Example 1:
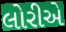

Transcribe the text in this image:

લોરીએ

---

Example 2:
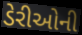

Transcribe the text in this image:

ડેરીઓની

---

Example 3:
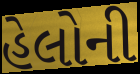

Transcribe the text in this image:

હેલોની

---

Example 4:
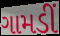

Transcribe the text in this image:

ગામડીં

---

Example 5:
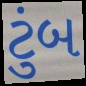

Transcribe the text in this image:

ટુંબ